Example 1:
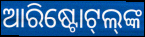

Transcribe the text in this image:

ଆରିଷ୍ଟୋଟ୍‌ଲ୍‌ଙ୍କ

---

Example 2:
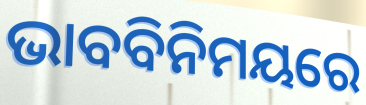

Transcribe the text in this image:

ଭାବବିନିମୟରେ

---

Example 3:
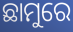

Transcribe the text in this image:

ଛାମୁରେ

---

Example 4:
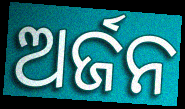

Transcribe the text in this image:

ଅର୍ଜନ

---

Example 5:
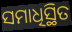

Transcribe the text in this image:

ସମାଧିସ୍ଥିତ